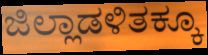
ಜಿಲ್ಲಾಡಳಿತಕ್ಕೂ